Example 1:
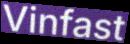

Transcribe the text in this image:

Vinfast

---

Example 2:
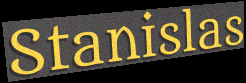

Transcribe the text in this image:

Stanislas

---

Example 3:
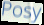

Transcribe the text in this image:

Posy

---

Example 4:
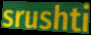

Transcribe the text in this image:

srushti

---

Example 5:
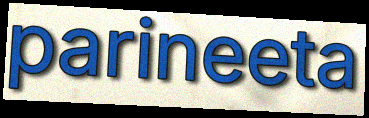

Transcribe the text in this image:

parineeta